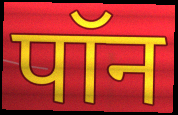
पॉन